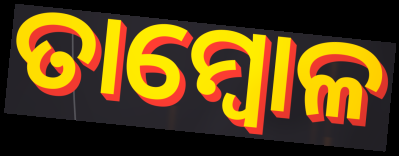
ତାମ୍ବୋଳ